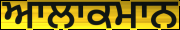
ਆਲਾਕਮਾਨ